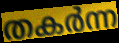
തകർന്ന